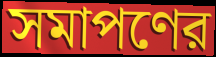
সমাপণের